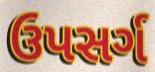
ઉપસર્ગ